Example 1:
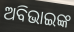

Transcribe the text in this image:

ଅବିଭାଇଙ୍କ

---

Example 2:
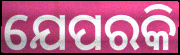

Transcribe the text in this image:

ଯେପରକି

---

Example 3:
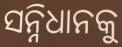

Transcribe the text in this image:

ସନ୍ନିଧାନକୁ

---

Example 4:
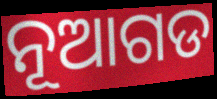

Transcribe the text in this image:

ନୂଆଗଡ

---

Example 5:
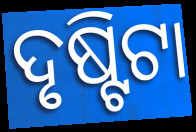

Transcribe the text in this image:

ଦୃଷ୍ଟିଟା